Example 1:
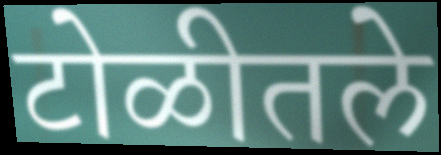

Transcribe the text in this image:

टोळीतले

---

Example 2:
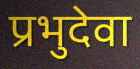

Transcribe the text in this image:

प्रभुदेवा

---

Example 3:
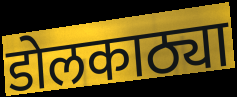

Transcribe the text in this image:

डोलकाठ्या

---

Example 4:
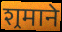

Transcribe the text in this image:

श्रमाने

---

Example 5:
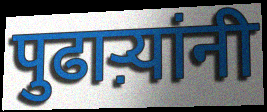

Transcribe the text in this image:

पुढाऱ्‍यांनी